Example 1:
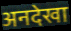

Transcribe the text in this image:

अनदेखा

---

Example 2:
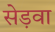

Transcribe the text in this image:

सेड़वा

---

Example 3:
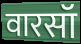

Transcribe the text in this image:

वारसॉ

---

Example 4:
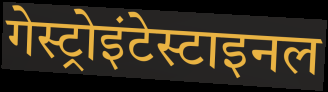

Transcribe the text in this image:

गेस्ट्रोइंटेस्टाइनल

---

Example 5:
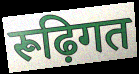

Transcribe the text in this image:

रूढ़िगत